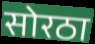
सोरठा